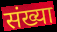
संख्या